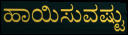
ಹಾಯಿಸುವಷ್ಟು